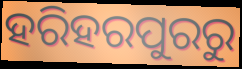
ହରିହରପୁରରୁ